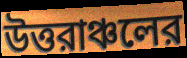
উত্তরাঞ্চলের